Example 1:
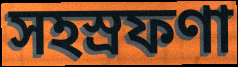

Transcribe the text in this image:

সহস্রফণা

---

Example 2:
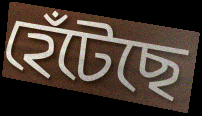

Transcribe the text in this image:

হেঁটেছে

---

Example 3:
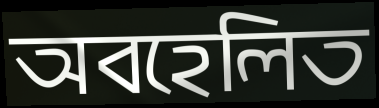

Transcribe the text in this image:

অবহেলিত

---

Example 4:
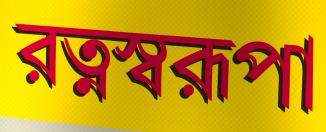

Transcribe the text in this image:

রত্নস্বরূপা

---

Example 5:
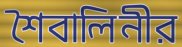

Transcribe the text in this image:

শৈবালিনীর